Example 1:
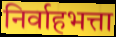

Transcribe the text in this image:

निर्वाहभत्ता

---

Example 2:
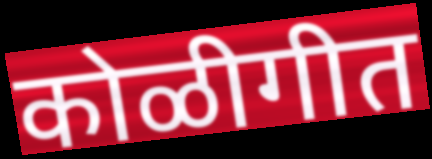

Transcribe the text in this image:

कोळीगीत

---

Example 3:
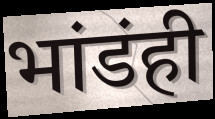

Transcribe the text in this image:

भांडंही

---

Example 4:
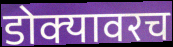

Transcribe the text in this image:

डोक्यावरच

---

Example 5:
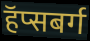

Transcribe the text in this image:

हॅप्सबर्ग